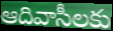
ఆదివాసీలకు